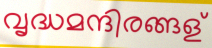
വൃദ്ധമന്ദിരങ്ങള്